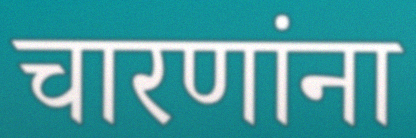
चारणांना